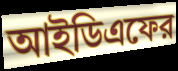
আইডিএফের